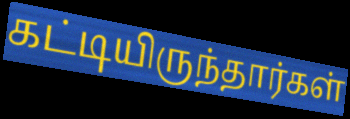
கட்டியிருந்தார்கள்